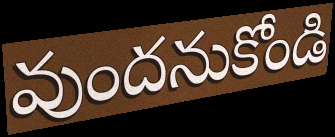
వుందనుకోండి